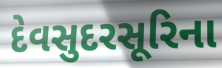
દેવસુદરસૂરિના